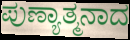
ಪುಣ್ಯಾತ್ಮನಾದ